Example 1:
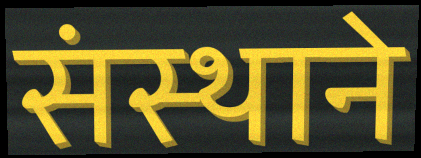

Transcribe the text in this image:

संस्थाने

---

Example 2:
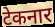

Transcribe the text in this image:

टेकनार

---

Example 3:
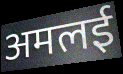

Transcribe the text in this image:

अमलई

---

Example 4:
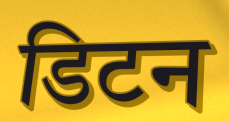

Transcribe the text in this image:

डिटन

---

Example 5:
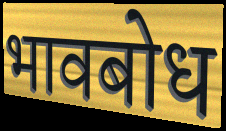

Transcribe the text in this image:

भावबोध